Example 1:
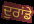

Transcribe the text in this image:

ਦੁਰਾਂਡੇ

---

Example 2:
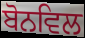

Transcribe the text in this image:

ਬੋਨਵਿਲ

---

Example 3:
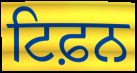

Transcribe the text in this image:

ਟਿਫ਼ਨ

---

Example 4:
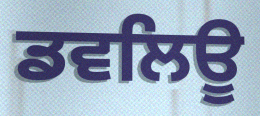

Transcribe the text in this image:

ਡਵਲਿਊ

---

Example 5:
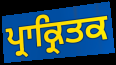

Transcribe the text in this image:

ਪ੍ਰਾਕ੍ਰਿਤਕ